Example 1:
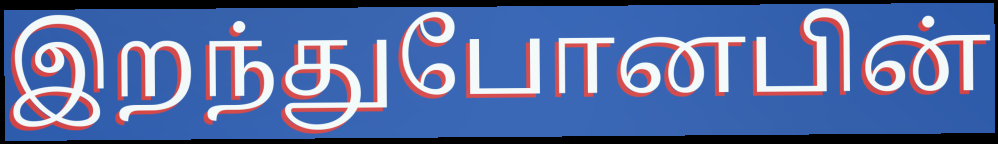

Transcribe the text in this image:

இறந்துபோனபின்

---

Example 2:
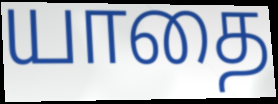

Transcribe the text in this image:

யாதை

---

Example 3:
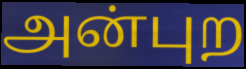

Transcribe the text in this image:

அன்புற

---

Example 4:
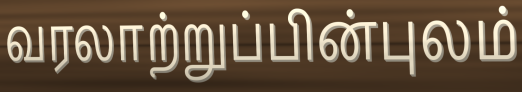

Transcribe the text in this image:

வரலாற்றுப்பின்புலம்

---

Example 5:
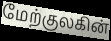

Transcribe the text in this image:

மேற்குலகின்